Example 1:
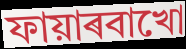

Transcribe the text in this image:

ফায়াৰবাখো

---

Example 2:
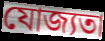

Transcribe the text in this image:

যোজ্যতা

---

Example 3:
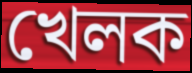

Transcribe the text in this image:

খেলক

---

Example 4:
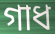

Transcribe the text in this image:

গাধ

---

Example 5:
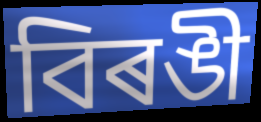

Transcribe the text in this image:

বিৰঙী